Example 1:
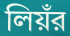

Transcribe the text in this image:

লিয়ঁর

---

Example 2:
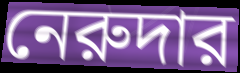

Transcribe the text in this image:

নেরুদার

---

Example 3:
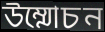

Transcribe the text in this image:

উম্মোচন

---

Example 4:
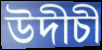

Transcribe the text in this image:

উদীচী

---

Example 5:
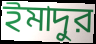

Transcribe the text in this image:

ইমাদুর